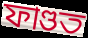
ফাণ্ডত